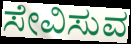
ಸೇವಿಸುವ